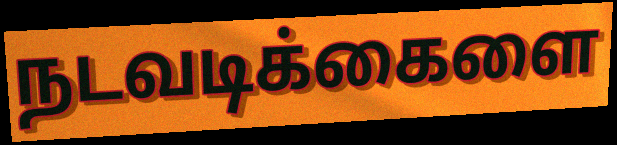
நடவடிக்கைளை